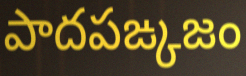
పాదపఙ్కజం